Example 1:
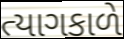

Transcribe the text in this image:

ત્યાગકાળે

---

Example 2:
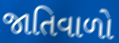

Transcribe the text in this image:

જાતિવાળો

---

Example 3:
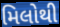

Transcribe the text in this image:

મિલોથી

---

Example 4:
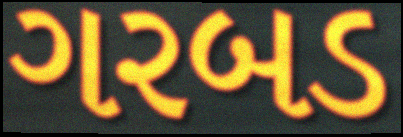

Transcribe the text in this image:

ગરબડ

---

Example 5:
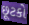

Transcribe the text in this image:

છૂટકો